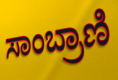
ಸಾಂಬ್ರಾಣಿ